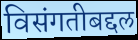
विसंगतीबद्दल